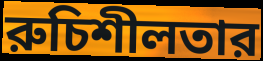
রুচিশীলতার